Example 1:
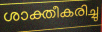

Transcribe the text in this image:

ശാക്തീകരിച്ചു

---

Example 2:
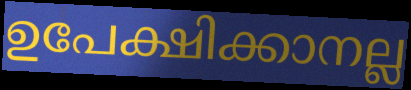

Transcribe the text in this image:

ഉപേക്ഷിക്കാനല്ല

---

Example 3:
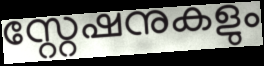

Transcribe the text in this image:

സ്റ്റേഷനുകളും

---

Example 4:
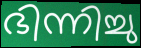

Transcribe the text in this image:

ഭിന്നിച്ചു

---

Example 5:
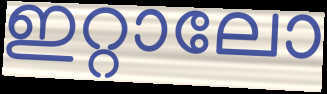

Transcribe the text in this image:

ഇറ്റാലോ